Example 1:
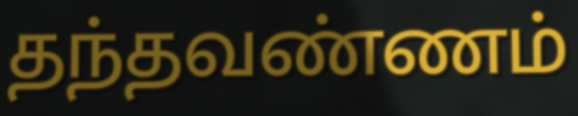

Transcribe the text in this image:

தந்தவண்ணம்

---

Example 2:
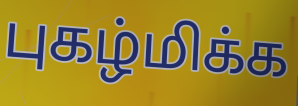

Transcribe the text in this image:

புகழ்மிக்க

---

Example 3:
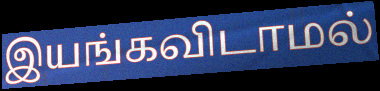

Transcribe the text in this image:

இயங்கவிடாமல்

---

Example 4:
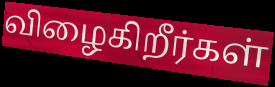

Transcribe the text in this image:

விழைகிறீர்கள்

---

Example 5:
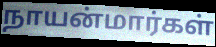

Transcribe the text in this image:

நாயன்மார்கள்